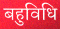
बहुविधि